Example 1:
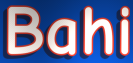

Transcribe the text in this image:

Bahi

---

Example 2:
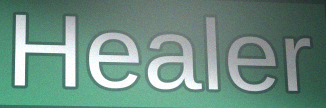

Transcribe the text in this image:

Healer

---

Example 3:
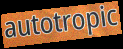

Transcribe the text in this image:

autotropic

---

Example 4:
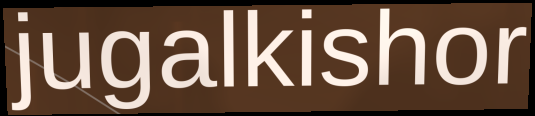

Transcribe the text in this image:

jugalkishor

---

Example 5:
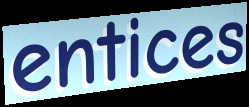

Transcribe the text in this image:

entices